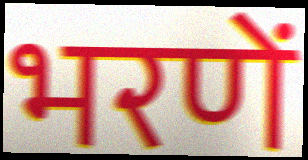
भरणें